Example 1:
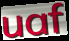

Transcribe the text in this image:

uaf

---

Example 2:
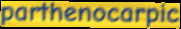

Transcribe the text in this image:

parthenocarpic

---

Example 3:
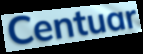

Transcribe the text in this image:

Centuar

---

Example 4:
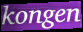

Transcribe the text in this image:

kongen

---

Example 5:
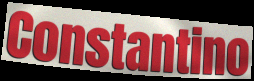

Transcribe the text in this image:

Constantino